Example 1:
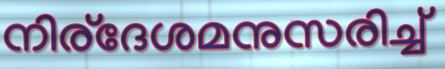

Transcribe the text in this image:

നിര്ദേശമനുസരിച്ച്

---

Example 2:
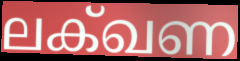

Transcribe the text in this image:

ലക്ഖണ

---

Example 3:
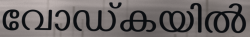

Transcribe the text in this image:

വോഡ്കയിൽ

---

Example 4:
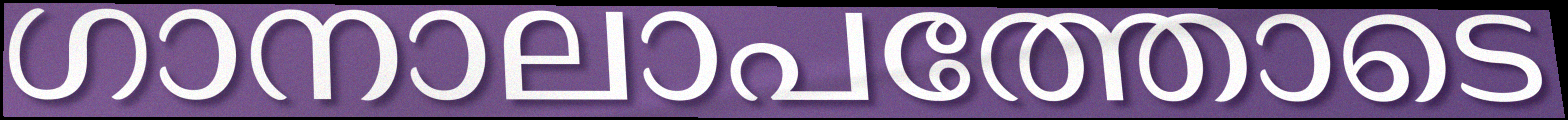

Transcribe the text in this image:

ഗാനാലാപത്തോടെ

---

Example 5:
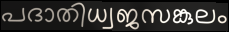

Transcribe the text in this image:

പദാതിധ്വജസങ്കുലം